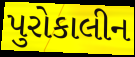
પુરોકાલીન